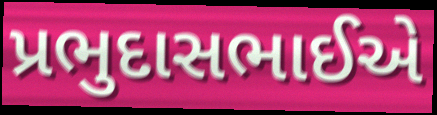
પ્રભુદાસભાઈએ